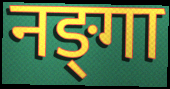
नङ्गा